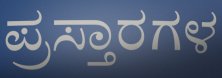
ಪ್ರಸ್ತಾರಗಳ